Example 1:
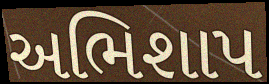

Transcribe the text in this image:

અભિશાપ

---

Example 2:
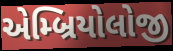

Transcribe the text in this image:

એમ્બ્રિયોલોજી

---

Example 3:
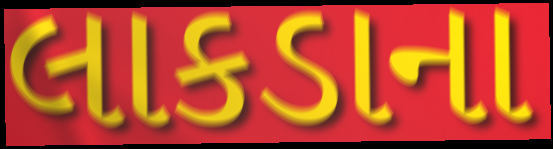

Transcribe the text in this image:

લાકડાના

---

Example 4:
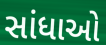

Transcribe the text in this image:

સાંધાઓ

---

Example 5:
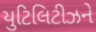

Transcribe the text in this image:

યુટિલિટીઝને